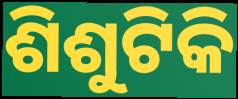
ଶିଶୁଟିକି